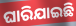
ଘାରିଯାଇଛି